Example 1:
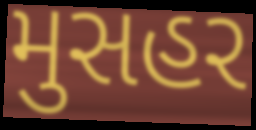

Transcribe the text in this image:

મુસહર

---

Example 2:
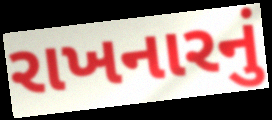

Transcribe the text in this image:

રાખનારનું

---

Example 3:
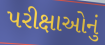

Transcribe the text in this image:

પરીક્ષાઓનું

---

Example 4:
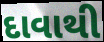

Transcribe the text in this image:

દાવાથી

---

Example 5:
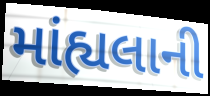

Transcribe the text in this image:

માંહ્યલાની